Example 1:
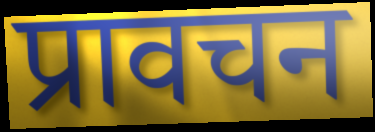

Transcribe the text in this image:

प्रावचन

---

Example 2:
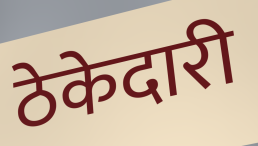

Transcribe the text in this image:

ठेकेदारी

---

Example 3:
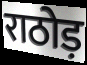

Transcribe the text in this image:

राठोड़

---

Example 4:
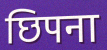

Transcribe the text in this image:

छिपना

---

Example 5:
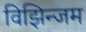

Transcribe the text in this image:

विझिन्जम